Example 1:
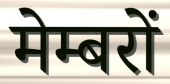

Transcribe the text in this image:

मेम्बरों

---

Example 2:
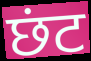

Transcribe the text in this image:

छंट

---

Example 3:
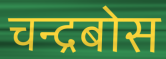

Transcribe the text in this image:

चन्द्रबोस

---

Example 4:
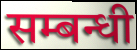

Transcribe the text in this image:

सम्बन्धी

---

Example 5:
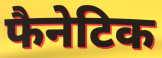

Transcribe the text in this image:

फैनेटिक